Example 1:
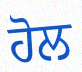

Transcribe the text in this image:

ਹੋਲ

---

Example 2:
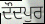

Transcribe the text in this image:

ਦੌਦਪੁਰ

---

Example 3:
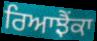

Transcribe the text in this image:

ਰਿਆਝੈਂਕਾ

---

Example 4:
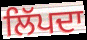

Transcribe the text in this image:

ਲਿੱਪਦਾ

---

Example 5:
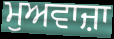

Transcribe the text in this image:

ਮੁਅਵਾਜ਼ਾ